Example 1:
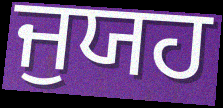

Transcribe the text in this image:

ਜੁਯਹ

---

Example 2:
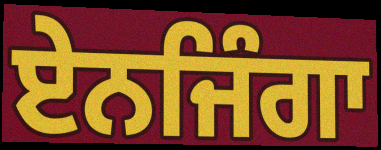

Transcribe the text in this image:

ਏਨਜਿੰਗਾ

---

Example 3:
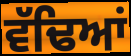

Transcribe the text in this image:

ਵੱਢਿਆਂ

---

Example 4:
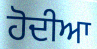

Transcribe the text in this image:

ਹੋਦੀਆ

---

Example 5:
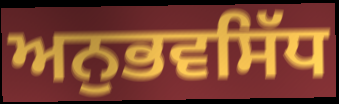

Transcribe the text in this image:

ਅਨੁਭਵਸਿੱਧ